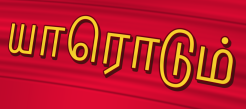
யாரொடும்